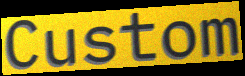
Custom